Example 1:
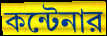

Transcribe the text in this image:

কন্টেনার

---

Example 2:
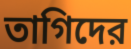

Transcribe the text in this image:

তাগিদের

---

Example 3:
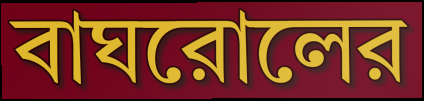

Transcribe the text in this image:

বাঘরোলের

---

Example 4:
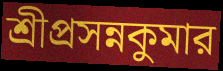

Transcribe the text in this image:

শ্রীপ্রসন্নকুমার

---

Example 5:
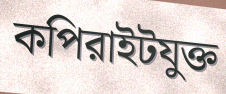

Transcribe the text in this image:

কপিরাইটযুক্ত